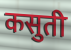
कसुती